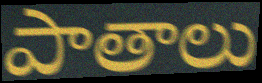
పాతాలు